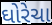
ઘોરેચા